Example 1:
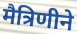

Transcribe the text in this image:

मैत्रिणीने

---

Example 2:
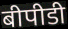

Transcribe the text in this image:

बीपीडी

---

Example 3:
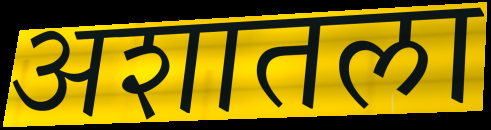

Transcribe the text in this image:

अशातला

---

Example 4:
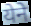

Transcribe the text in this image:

येने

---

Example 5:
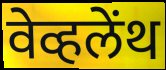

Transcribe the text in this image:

वेव्हलेंथ